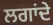
ਲਗਾਂਦੇ